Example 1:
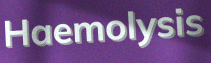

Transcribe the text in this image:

Haemolysis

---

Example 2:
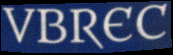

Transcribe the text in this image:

VBREC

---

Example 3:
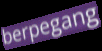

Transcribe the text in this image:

berpegang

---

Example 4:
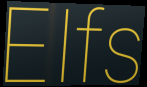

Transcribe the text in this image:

Elfs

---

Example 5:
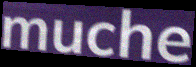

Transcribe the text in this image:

muche